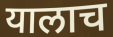
यालाच